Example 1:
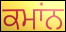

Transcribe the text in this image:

ਕਮਾਂਨ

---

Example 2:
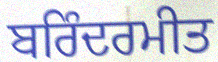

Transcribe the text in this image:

ਬਰਿੰਦਰਮੀਤ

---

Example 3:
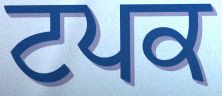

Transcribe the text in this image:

ਟਪਕ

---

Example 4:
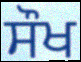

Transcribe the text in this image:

ਸੌਖ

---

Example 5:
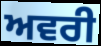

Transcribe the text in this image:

ਅਵਰੀ